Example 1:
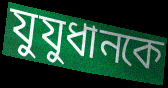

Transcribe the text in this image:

যুযুধানকে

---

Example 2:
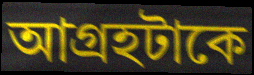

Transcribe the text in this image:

আগ্রহটাকে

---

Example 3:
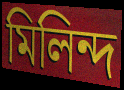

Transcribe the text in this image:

মিলিন্দ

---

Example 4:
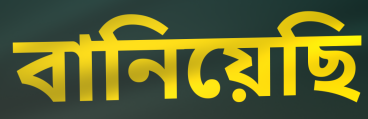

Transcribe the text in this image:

বানিয়েছি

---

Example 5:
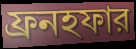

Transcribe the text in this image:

ফ্রনহফার